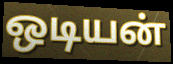
ஒடியன்